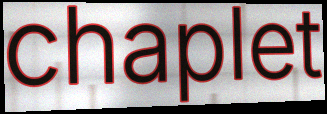
chaplet